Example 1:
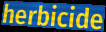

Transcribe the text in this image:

herbicide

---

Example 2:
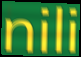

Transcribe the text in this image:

nili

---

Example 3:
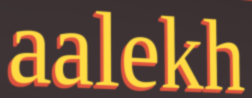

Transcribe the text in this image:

aalekh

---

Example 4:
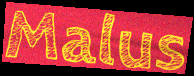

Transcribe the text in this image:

Malus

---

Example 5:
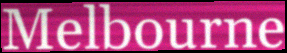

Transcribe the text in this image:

Melbourne